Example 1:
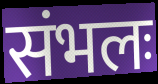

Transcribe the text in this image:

संभलः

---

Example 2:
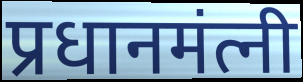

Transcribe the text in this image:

प्रधानमंत्नी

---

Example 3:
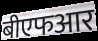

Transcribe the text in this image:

बीएफआर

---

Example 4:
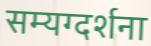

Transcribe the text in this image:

सम्यग्दर्शना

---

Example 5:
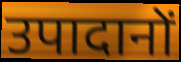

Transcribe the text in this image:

उपादानों